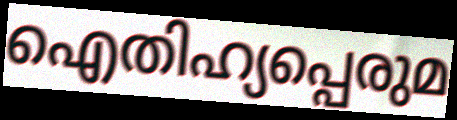
ഐതിഹ്യപ്പെരുമ